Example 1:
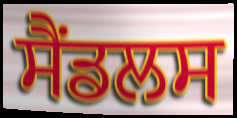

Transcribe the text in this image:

ਸੈਂਡਲਸ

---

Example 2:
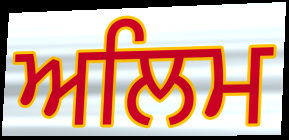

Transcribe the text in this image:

ਅਲਿਮ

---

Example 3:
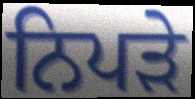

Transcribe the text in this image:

ਨਿਪੜੇ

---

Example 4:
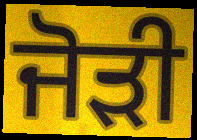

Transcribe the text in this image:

ਜੋਡ਼ੀ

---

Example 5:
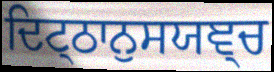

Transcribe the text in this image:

ਦਿਟ੍ਠਾਨੁਸਯਞ੍ਚ